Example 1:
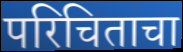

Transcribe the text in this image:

परिचिताचा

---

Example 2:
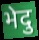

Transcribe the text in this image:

भेदु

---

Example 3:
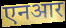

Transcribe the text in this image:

एनआर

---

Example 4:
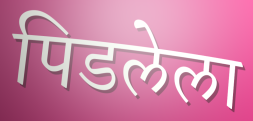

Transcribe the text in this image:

पिडलेला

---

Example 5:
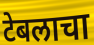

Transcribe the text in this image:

टेबलाचा